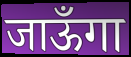
जाऊँगा